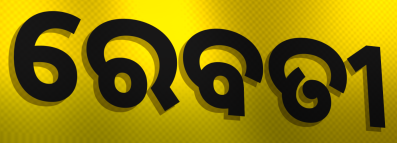
ରେବତୀ